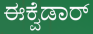
ಈಕ್ವೆಡಾರ್